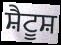
ਸ਼ੈਟੂਸ਼